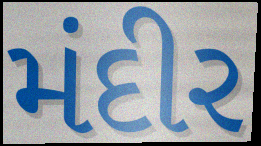
મંદીર